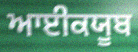
ਆਈਕਯੂਬ